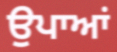
ਉਪਾਆਂ